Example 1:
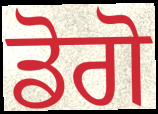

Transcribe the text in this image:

ਡੋਗੋ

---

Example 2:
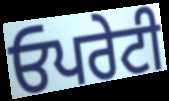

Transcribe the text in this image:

ਓਪਰੇਟੀ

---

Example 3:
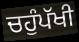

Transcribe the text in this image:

ਚਹੁੰਪੱਖੀ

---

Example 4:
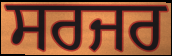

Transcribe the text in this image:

ਸਰਜਰ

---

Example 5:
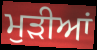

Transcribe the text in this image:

ਮੁੜੀਆਂ